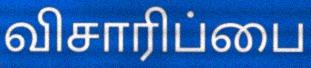
விசாரிப்பை